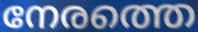
നേരത്തെ